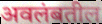
अवलंबतील